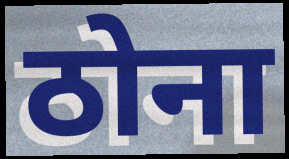
ठोना